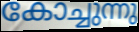
കോച്ചുന്നു